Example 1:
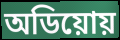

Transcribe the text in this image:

অডিয়োয়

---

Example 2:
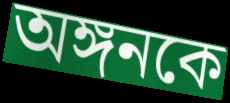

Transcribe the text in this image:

অঙ্গনকে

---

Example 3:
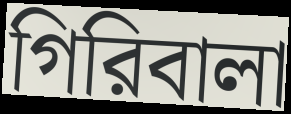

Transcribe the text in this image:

গিরিবালা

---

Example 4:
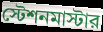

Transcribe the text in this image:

স্টেশনমাস্টার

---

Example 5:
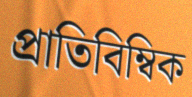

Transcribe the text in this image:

প্রাতিবিম্বিক